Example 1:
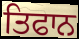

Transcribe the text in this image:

ਤਿਫਾਨ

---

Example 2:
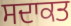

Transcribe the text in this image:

ਸਦਾਕਤ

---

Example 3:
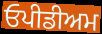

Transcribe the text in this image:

ਓਪੀਡੀਅਮ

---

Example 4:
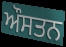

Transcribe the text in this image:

ਔਸਤਨ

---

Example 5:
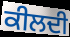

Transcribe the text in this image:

ਕੀਲਦੀ